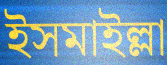
ইসমাইল্লা